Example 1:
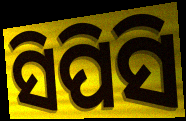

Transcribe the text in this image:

ସିପିସି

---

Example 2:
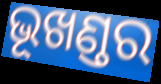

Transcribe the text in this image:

ଭୂଖଣ୍ଡର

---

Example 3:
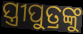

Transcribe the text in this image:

ସ୍ତ୍ରୀପୁତ୍ରଙ୍କୁ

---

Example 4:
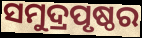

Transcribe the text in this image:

ସମୁଦ୍ରପୃଷ୍ଠର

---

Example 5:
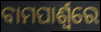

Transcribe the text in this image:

ବାମପାର୍ଶ୍ଵରେ